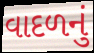
વાદળનું